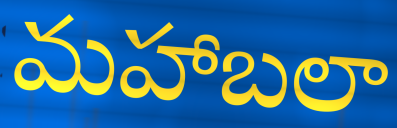
మహాబలా